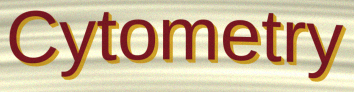
Cytometry